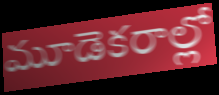
మూడెకరాల్లో